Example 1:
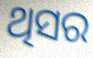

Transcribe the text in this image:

ଥିସର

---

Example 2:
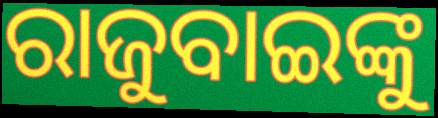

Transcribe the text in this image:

ରାଜୁବାଇଙ୍କୁ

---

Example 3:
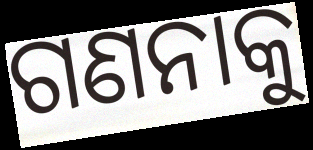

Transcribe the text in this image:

ଗଣନାକୁ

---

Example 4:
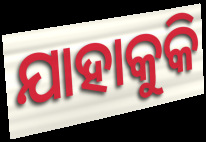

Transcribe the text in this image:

ଯାହାକୁକି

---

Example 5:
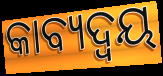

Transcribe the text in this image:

କାବ୍ୟଦ୍ୱୟ